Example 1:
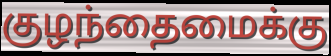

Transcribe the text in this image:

குழந்தைமைக்கு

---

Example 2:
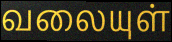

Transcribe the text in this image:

வலையுள்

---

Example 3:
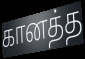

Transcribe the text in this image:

கானத்த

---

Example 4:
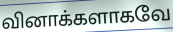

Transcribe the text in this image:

வினாக்களாகவே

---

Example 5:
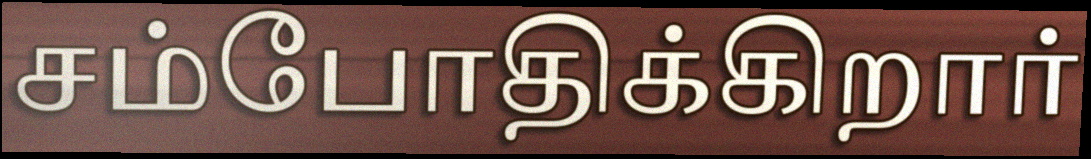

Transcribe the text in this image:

சம்போதிக்கிறார்